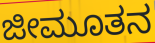
ಜೀಮೂತನ